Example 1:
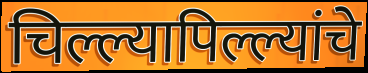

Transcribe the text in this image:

चिल्ल्यापिल्ल्यांचे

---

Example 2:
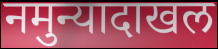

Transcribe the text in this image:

नमुन्यादाखल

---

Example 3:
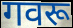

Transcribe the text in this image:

गवरू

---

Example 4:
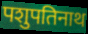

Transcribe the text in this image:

पशुपतिनाथ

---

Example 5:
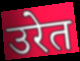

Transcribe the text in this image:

उरेत